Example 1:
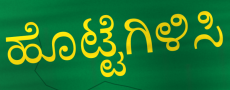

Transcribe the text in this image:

ಹೊಟ್ಟೆಗಿಳಿಸಿ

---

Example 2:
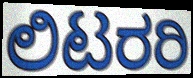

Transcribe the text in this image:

ಲಿಟರರಿ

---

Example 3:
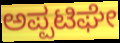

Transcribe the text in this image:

ಅಪ್ಪಟಿಘೇ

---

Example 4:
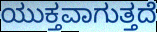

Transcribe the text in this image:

ಯುಕ್ತವಾಗುತ್ತದೆ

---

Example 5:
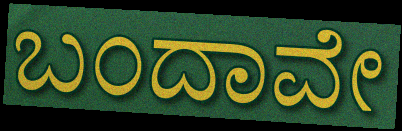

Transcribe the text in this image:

ಬಂದಾವೇ